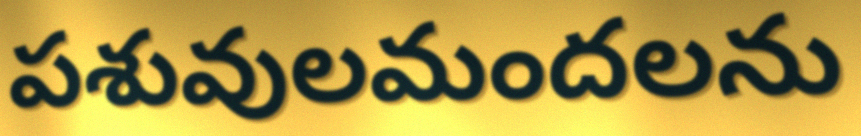
పశువులమందలను